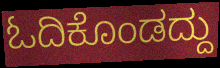
ಓದಿಕೊಂಡದ್ದು